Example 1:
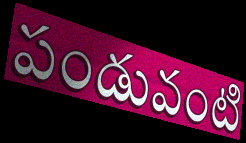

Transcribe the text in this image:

పండువంటి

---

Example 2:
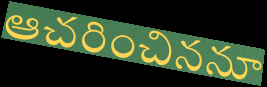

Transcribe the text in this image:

ఆచరించిననూ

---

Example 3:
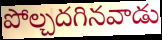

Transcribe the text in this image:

పోల్చదగినవాడు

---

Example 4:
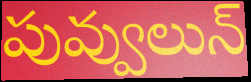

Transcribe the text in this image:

పువ్వులున్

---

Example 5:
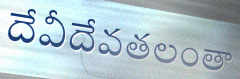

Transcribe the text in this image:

దేవీదేవతలంతా